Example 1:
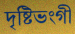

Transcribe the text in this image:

দৃষ্টিভংগী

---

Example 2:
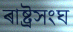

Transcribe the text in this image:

ৰাষ্ট্ৰসংঘ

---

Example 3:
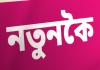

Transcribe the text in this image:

নতুনকৈ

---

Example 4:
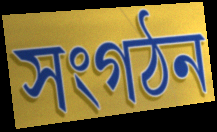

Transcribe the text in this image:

সংগঠন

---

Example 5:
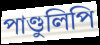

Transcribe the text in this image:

পাণ্ডুলিপি